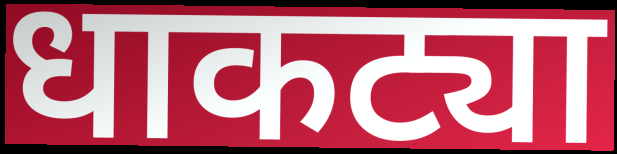
धाकट्या